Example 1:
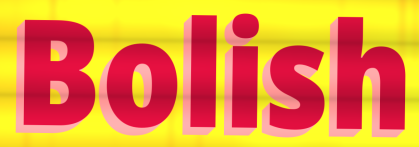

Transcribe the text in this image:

Bolish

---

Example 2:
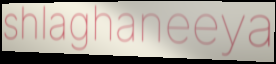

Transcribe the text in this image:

shlaghaneeya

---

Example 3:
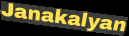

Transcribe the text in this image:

Janakalyan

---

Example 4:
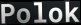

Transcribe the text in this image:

Polok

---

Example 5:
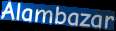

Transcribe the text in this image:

Alambazar